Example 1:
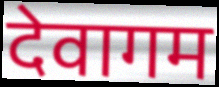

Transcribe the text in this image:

देवागम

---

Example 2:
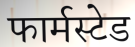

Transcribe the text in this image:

फार्मस्टेड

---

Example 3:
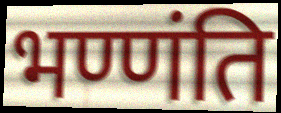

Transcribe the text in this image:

भण्णंति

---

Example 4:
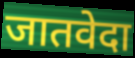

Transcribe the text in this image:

जातवेदा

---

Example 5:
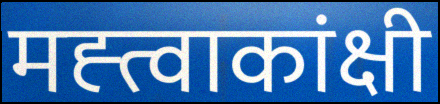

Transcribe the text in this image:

मह्त्वाकांक्षी